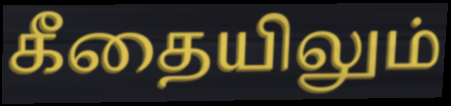
கீதையிலும்